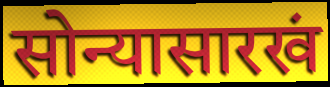
सोन्यासारखं